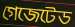
গেজেটেড